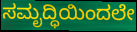
ಸಮೃದ್ಧಿಯಿಂದಲೇ